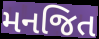
મનજિત